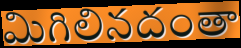
మిగిలినదంతా